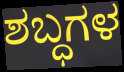
ಶಬ್ಧಗಳ